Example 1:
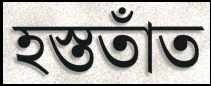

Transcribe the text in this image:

হস্ততাঁত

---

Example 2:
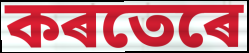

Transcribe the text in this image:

কৰতেৰে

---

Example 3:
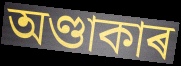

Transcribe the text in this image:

অণ্ডাকাৰ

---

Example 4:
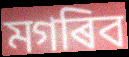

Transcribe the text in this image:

মগৰিব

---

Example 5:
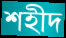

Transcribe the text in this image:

শহীদ